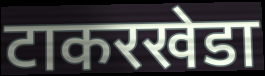
टाकरखेडा